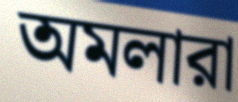
অমলারা